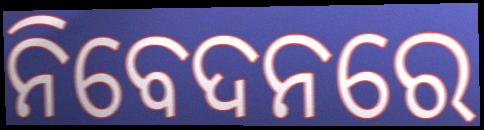
ନିବେଦନରେ